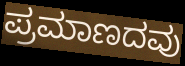
ಪ್ರಮಾಣದವು